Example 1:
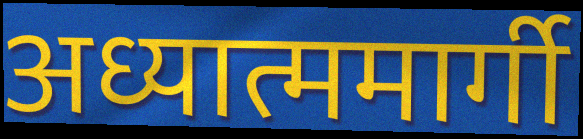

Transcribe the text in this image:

अध्यात्ममार्गी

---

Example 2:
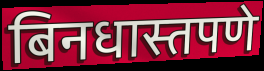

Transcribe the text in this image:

बिनधास्तपणे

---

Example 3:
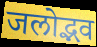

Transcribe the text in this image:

जलोद्भव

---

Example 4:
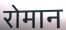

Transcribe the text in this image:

रोमान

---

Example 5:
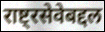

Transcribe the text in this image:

राष्ट्रसेवेबद्दल